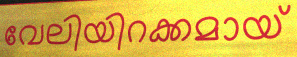
വേലിയിറക്കമായ്